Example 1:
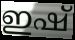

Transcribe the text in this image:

ഇഷ്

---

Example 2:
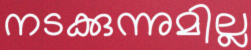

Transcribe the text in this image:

നടക്കുന്നുമില്ല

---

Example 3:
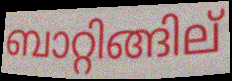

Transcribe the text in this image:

ബാറ്റിങ്ങില്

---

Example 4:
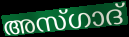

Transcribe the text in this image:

അസ്ഗാദ്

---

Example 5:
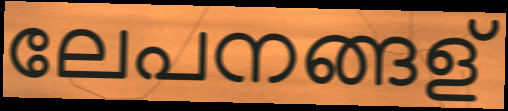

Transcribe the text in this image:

ലേപനങ്ങള്